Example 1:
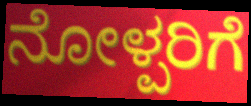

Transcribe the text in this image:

ನೋಳ್ಪರಿಗೆ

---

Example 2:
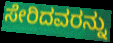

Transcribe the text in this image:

ಸೇರಿದವರನ್ನು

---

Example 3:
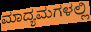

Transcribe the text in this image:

ಮಾದ್ಯಮಗಳಲ್ಲಿ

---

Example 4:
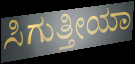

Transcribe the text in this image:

ಸಿಗುತ್ತೀಯಾ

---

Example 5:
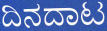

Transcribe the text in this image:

ದಿನದಾಟ